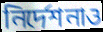
নির্দেশনাও